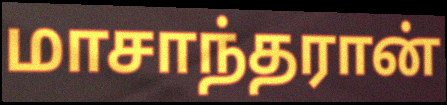
மாசாந்தரான்